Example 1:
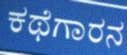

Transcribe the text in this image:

ಕಥೆಗಾರನ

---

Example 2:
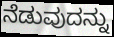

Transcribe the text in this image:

ನೆಡುವುದನ್ನು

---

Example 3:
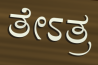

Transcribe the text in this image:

ತೇಽತ್ರ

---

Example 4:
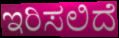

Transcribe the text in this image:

ಇರಿಸಲಿದೆ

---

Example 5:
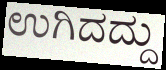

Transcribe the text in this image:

ಉಗಿದದ್ದು